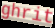
ghrit